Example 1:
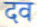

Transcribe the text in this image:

दव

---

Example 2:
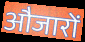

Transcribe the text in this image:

औजारों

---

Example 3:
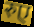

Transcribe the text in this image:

रुए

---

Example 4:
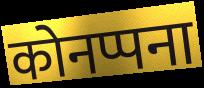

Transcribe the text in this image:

कोनप्पना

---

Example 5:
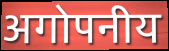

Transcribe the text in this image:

अगोपनीय